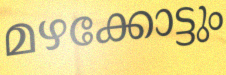
മഴക്കോട്ടും